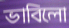
ভাবিলো